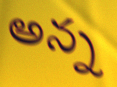
అన్న